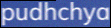
pudhchya